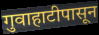
गुवाहाटीपासून